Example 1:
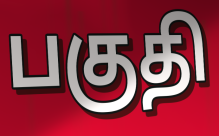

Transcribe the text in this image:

பகுதி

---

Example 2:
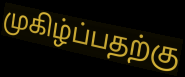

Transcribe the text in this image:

முகிழ்ப்பதற்கு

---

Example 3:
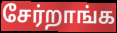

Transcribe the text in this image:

சேர்றாங்க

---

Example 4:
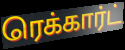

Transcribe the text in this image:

ரெக்கார்ட்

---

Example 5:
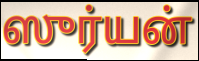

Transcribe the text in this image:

ஸுர்யன்